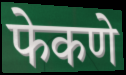
फेकणे